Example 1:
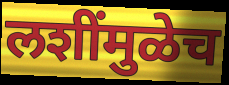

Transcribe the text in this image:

लशींमुळेच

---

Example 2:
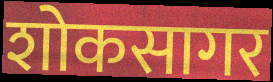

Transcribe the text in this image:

शोकसागर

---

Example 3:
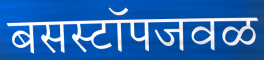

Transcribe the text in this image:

बसस्टॉपजवळ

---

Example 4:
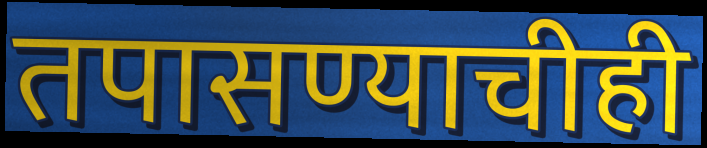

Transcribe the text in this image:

तपासण्याचीही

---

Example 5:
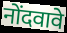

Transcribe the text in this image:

नोंदवावे